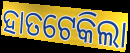
ହାତଟେକିଲା